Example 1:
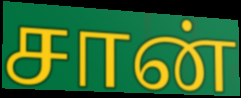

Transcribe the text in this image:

சான்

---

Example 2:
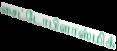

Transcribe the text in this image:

சைட்டோபிளாஸ்மிக்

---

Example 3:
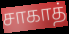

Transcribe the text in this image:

சாகாத்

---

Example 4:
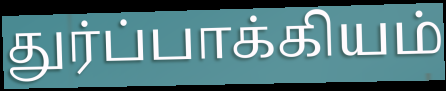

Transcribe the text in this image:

துர்ப்பாக்கியம்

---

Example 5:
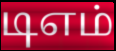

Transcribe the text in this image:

டிஎம்